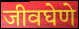
जीवघेणे